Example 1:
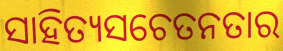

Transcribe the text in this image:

ସାହିତ୍ୟସଚେତନତାର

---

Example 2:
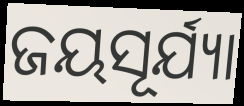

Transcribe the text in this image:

ଜୟସୂର୍ଯ୍ୟା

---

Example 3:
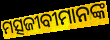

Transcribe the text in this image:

ମତ୍ସଜୀବୀମାନଙ୍କ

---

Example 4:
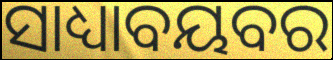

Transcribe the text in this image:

ସାଧ୍ୟାବୟବର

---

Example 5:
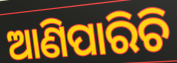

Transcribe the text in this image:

ଆଣିପାରିଚି